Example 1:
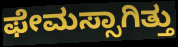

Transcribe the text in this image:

ಫೇಮಸ್ಸಾಗಿತ್ತು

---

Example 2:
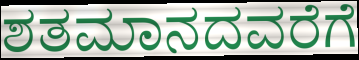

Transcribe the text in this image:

ಶತಮಾನದವರೆಗೆ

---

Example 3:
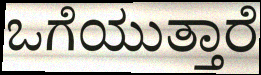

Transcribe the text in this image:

ಒಗೆಯುತ್ತಾರೆ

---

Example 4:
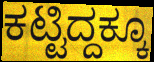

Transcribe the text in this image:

ಕಟ್ಟಿದ್ದಕ್ಕೂ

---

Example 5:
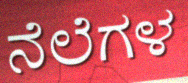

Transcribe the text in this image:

ನೆಲೆಗಳ